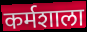
कर्मशाला